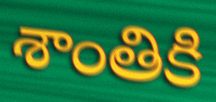
శాంతికి